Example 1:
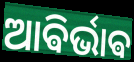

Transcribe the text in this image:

ଆଵିର୍ଭାଵ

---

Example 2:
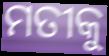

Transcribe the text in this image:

ମତୀକୁ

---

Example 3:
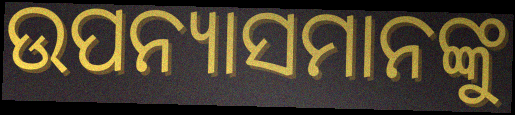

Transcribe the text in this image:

ଉପନ୍ୟାସମାନଙ୍କୁ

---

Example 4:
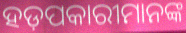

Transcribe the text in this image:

ହଡ଼ପକାରୀମାନଙ୍କ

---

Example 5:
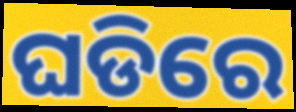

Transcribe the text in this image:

ଘଡିରେ